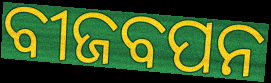
ବୀଜବପନ